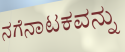
ನಗೆನಾಟಕವನ್ನು